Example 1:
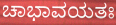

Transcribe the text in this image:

ಚಾಭಾವಯತಃ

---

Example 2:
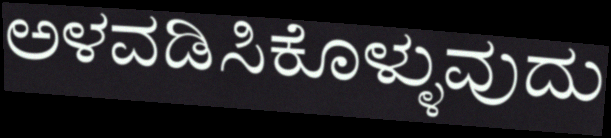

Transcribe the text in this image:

ಅಳವಡಿಸಿಕೊಳ್ಳುವುದು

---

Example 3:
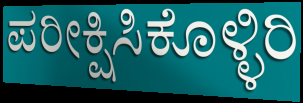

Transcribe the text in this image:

ಪರೀಕ್ಷಿಸಿಕೊಳ್ಳಿರಿ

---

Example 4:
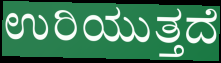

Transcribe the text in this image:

ಉರಿಯುತ್ತದೆ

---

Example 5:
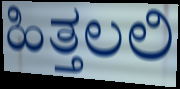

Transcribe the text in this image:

ಹಿತ್ತಲಲಿ